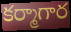
కర్మాగార